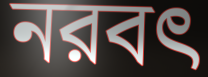
নরবৎ